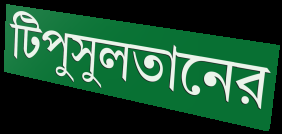
টিপুসুলতানের